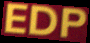
EDP